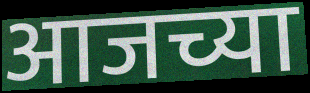
आजच्या